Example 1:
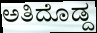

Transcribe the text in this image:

ಅತಿದೊಡ್ದ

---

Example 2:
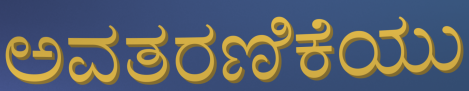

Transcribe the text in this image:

ಅವತರಣಿಕೆಯು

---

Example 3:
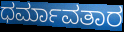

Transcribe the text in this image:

ಧರ್ಮಾವತಾರ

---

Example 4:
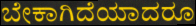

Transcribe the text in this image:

ಬೇಕಾಗಿದೆಯಾದರೂ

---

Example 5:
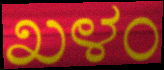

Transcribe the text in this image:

ಖಳಂ